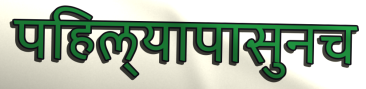
पहिल्यापासुनच